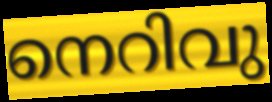
നെറിവു